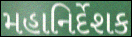
મહાનિર્દેશક